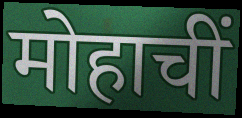
मोहाचीं